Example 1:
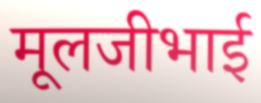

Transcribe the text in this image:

मूलजीभाई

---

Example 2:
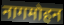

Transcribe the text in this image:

नागमोहन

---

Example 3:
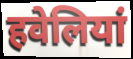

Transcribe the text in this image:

हवेलियां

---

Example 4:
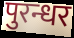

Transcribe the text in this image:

पुरन्धर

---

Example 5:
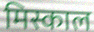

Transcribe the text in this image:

मिस्काल